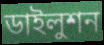
ডাইলুশন